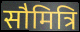
सौमित्रि